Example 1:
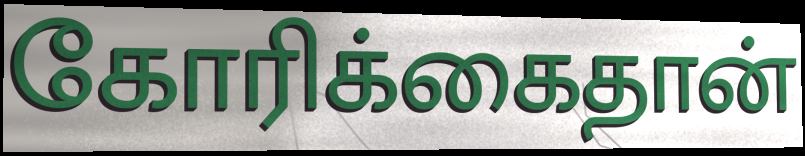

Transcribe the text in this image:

கோரிக்கைதான்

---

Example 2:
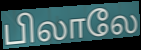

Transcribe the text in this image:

பிலாலே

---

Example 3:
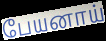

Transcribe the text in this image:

பேயனாய்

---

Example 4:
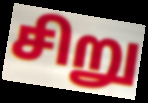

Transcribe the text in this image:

சிறு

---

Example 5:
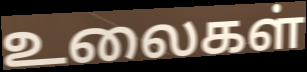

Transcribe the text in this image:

உலைகள்